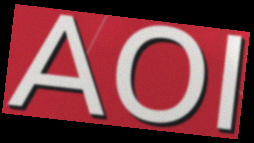
AOI